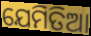
ଯେମିତିଆ